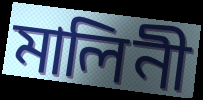
মালিনী